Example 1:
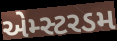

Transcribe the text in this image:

એમ્સ્ટરડમ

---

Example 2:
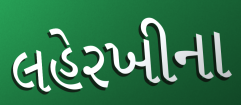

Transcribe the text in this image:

લહેરખીના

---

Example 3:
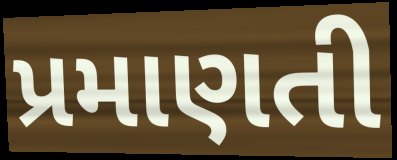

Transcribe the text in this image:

પ્રમાણતી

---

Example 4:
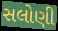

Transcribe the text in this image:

સલોણી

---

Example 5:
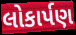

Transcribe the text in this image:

લોકાર્પણ